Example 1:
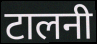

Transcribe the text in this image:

टालनी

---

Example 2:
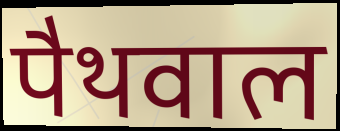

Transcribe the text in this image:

पैथवाल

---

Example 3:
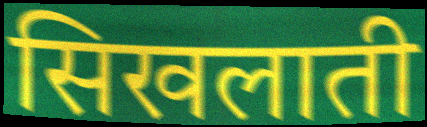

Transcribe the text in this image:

सिखलाती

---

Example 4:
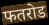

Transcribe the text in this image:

फतरोड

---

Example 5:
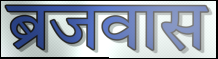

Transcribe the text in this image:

ब्रजवास